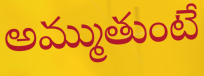
అమ్ముతుంటే